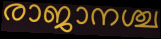
രാജാനശ്ച